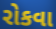
રોકવા